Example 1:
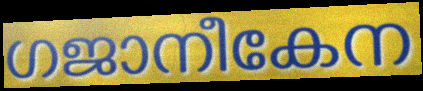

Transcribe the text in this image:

ഗജാനീകേന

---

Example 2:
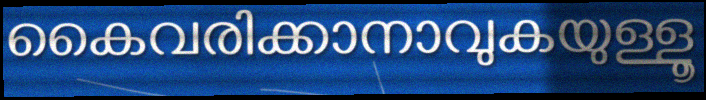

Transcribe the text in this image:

കൈവരിക്കാനാവുകയുള്ളൂ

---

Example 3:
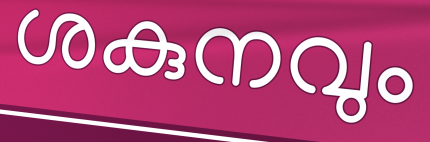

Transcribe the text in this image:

ശകുനവും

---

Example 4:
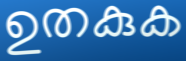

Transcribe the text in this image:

ഉതകുക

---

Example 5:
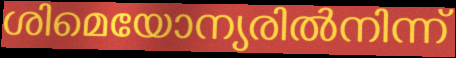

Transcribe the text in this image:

ശിമെയോന്യരിൽനിന്ന്